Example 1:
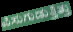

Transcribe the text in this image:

ಪಿಸುಗುಡುತ್ತಿತ್ತು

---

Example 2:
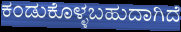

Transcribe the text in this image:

ಕಂಡುಕೊಳ್ಳಬಹುದಾಗಿದೆ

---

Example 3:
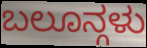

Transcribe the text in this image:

ಬಲೂನ್ಗಳು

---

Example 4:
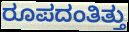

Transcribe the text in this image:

ರೂಪದಂತಿತ್ತು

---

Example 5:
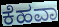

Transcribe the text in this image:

ಕೆಹವಾ